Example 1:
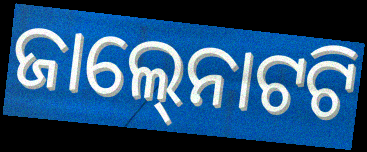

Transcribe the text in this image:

ଜାଲ୍‍ନୋଟଟି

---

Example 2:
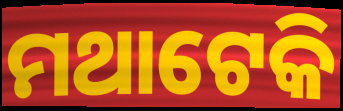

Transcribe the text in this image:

ମଥାଟେକି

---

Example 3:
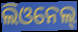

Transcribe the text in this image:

ଲିଓନେଲ୍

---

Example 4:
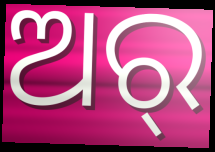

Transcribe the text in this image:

ଅର୍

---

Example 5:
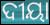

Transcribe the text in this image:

ଦୀୟା